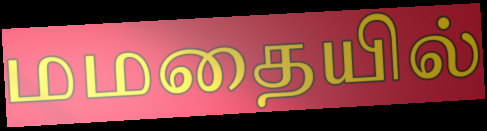
மமதையில்